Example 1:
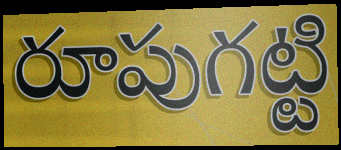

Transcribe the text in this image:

రూపుగట్టి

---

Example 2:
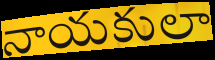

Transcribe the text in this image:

నాయకులా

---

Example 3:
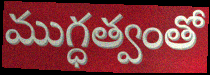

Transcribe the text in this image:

ముగ్ధత్వంతో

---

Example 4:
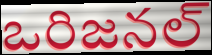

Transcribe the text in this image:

ఒరిజనల్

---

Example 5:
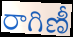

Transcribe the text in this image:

రాగిణీ